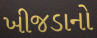
ખીજડાનો